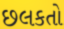
છલકતો